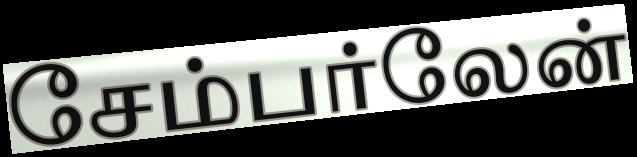
சேம்பர்லேன்